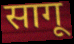
सागू